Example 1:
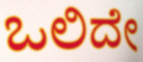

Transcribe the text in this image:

ಒಲಿದೇ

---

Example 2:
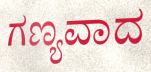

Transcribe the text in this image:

ಗಣ್ಯವಾದ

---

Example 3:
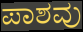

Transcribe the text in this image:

ಪಾಶವು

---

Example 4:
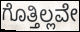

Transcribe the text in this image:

ಗೊತ್ತಿಲ್ಲವೇ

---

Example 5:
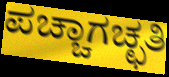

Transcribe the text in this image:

ಪಚ್ಚಾಗಚ್ಛತಿ